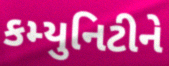
કમ્યુનિટીને